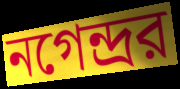
নগেন্দ্রর